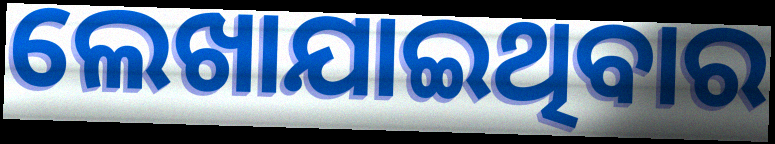
ଲେଖାଯାଇଥିବାର